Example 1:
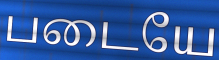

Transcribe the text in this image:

படையே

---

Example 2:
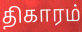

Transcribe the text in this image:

திகாரம்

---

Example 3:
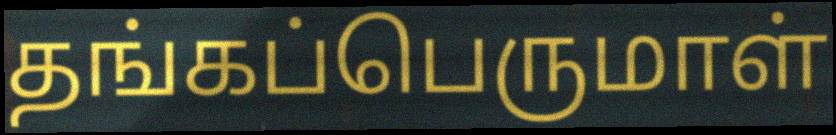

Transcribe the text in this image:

தங்கப்பெருமாள்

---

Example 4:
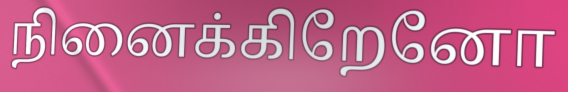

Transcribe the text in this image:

நினைக்கிறேனோ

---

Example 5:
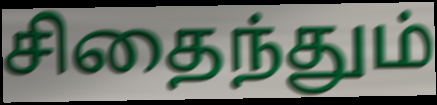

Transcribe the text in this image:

சிதைந்தும்